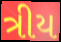
ત્રીય